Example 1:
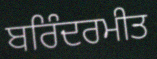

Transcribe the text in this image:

ਬਰਿੰਦਰਮੀਤ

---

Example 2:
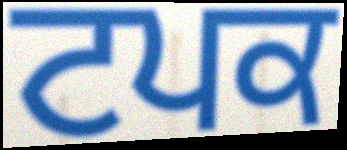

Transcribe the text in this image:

ਟਪਕ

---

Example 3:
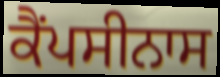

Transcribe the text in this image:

ਕੈਂਪਸੀਨਾਸ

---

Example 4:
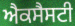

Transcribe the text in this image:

ਐਕਸੈਸਟੀ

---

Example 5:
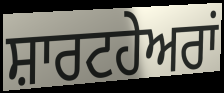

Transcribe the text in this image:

ਸ਼ਾਰਟਹੇਅਰਾਂ